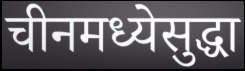
चीनमध्येसुद्धा